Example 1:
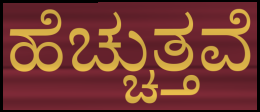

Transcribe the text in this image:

ಹೆಚ್ಚುತ್ತವೆ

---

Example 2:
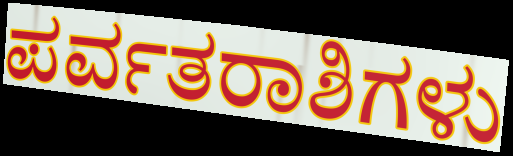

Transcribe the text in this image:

ಪರ್ವತರಾಶಿಗಳು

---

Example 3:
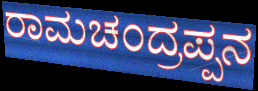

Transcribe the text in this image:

ರಾಮಚಂದ್ರಪ್ಪನ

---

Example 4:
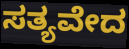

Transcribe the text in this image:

ಸತ್ಯವೇದ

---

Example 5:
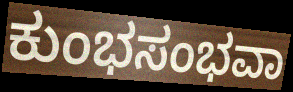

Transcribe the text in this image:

ಕುಂಭಸಂಭವಾ